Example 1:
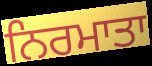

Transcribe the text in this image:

ਨਿਰਮਾਤਾ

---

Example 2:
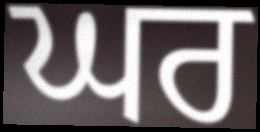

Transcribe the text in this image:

ਘਰ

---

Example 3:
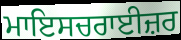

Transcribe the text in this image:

ਮਾਇਸਚਰਾਈਜ਼ਰ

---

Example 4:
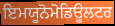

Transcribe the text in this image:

ਇਮਯੂਨੋਮੋਡਿਊਲਟਰ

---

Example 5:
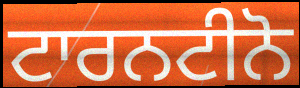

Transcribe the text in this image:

ਟਾਰਨਟੀਨੋ